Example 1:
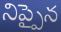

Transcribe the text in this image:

నిప్పైన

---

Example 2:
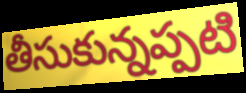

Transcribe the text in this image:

తీసుకున్నప్పటి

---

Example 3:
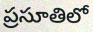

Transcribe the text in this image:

ప్రసూతిలో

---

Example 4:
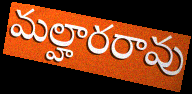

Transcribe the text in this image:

మల్హారరావు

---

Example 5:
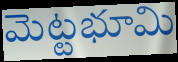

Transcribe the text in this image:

మెట్టభూమి